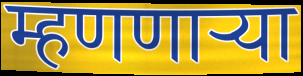
म्हणणार्‍या